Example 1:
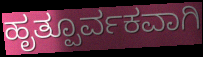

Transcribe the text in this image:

ಹೃತ್ಪೂರ್ವಕವಾಗಿ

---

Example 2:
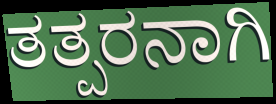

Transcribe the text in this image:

ತತ್ಪರನಾಗಿ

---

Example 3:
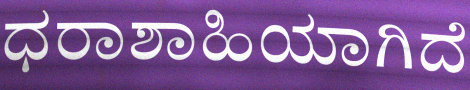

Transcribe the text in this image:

ಧರಾಶಾಹಿಯಾಗಿದೆ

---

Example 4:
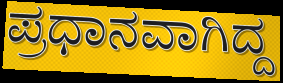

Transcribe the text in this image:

ಪ್ರಧಾನವಾಗಿದ್ದ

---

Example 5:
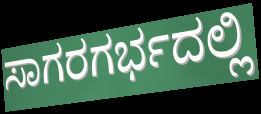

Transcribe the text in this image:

ಸಾಗರಗರ್ಭದಲ್ಲಿ